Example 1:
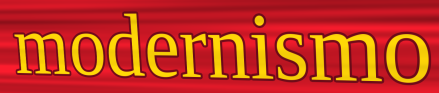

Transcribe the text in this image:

modernismo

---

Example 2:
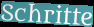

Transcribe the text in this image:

Schritte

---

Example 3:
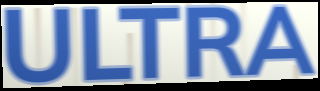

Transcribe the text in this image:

ULTRA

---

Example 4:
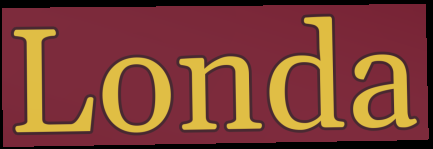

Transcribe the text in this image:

Londa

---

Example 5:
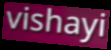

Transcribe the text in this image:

vishayi